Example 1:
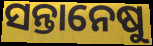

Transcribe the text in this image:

ସନ୍ତାନେଷୁ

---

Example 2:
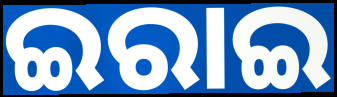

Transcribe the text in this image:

ଇରାଇ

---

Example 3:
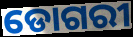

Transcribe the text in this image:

ଡୋଗରୀ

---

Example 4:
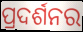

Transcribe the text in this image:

ପ୍ରଦର୍ଶନର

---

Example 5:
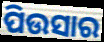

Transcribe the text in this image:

ପିଉସାର